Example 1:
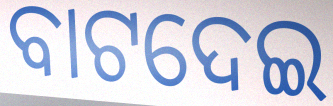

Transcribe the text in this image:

ବାଟଦେଇ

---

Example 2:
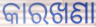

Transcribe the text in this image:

କାରଖଣା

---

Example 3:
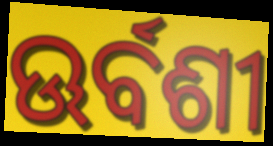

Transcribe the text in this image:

ଊର୍ବଶୀ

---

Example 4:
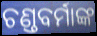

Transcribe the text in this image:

ଚଣ୍ଡବର୍ମାଙ୍କ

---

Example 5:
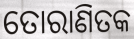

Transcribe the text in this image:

ତୋରାଣିତକ